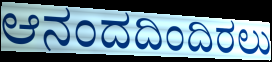
ಆನಂದದಿಂದಿರಲು